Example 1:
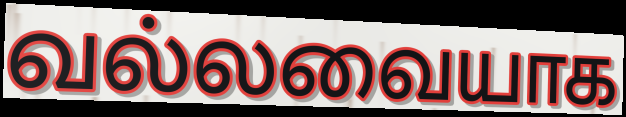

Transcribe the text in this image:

வல்லவையாக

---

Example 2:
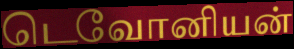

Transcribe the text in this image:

டெவோனியன்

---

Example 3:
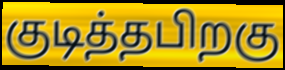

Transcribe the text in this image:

குடித்தபிறகு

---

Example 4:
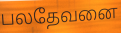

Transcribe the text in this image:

பலதேவனை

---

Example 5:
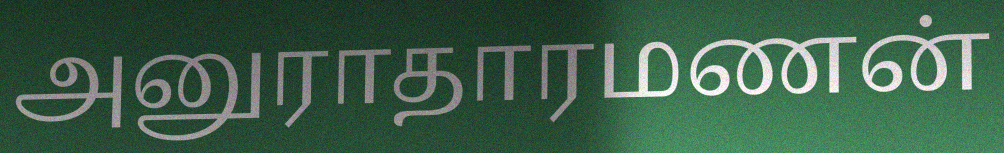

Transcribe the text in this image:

அனுராதாரமணன்